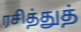
ரசித்துத்